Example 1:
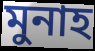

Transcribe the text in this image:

মুনাহ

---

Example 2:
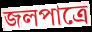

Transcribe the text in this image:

জলপাত্রে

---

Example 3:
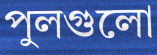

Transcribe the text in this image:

পুলগুলো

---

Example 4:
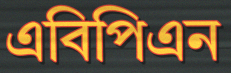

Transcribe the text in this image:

এবিপিএন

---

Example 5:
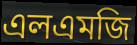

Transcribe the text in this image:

এলএমজি